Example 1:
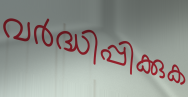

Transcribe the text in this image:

വർദ്ധിപ്പിക്കുക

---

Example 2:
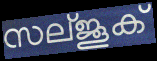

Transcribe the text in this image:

സല്ജൂക്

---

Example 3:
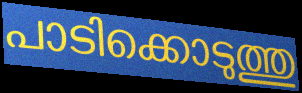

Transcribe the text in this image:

പാടിക്കൊടുത്തു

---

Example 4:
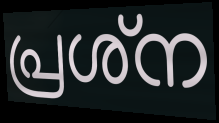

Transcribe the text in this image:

പ്രശ്‌ന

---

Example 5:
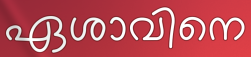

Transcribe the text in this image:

ഏശാവിനെ